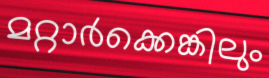
മറ്റാർക്കെങ്കിലും